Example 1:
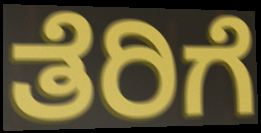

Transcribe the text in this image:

ತೆರಿಗೆ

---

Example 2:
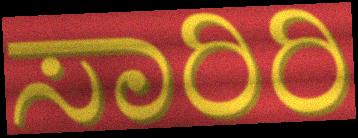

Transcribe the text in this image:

ಸಾರಿರಿ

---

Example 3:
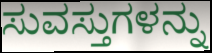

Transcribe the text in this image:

ಸುವಸ್ತುಗಳನ್ನು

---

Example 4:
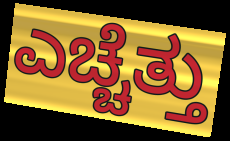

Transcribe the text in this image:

ಎಚ್ಚೆತ್ತು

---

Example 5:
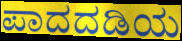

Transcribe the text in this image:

ಪಾದದಡಿಯ